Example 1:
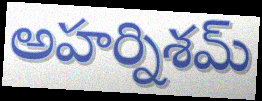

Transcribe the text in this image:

అహర్నిశమ్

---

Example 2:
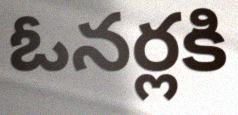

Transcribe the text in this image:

ఓనర్లకి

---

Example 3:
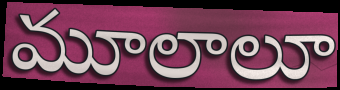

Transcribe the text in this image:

మూలాలూ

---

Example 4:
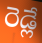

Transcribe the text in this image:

రెడ్లే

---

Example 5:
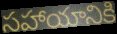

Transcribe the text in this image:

సహాయానికి